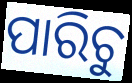
ପାରିଚୁ